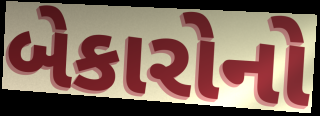
બેકારોનો